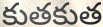
కుతకుత